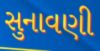
સુનાવણી